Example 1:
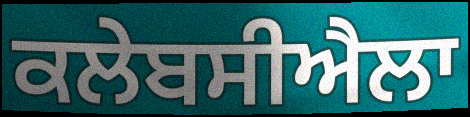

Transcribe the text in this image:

ਕਲੇਬਸੀਐਲਾ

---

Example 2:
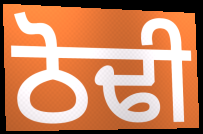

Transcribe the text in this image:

ਠੋਢੀ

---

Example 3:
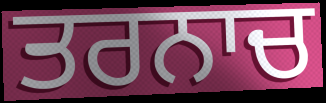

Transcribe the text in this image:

ਤਰਨਾਚ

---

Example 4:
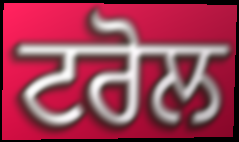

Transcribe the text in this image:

ਟਰੋਲ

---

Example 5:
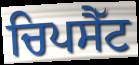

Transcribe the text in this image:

ਚਿਪਸੈੱਟ